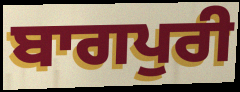
ਬਾਗਪੁਰੀ